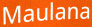
Maulana